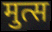
मुत्स